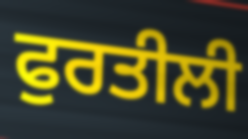
ਫੁਰਤੀਲੀ